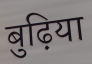
बुढ़िया